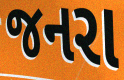
જનરા